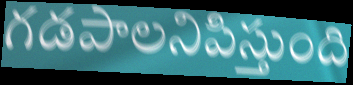
గడపాలనిపిస్తుంది